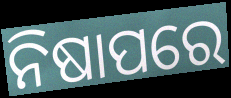
ନିଷାପରେ